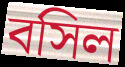
বসিল